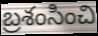
బ్రశంసించి